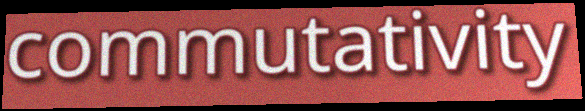
commutativity